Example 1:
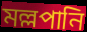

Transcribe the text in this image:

মল্লপানি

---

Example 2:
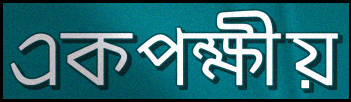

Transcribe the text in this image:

একপক্ষীয়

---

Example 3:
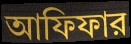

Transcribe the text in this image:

আফিফার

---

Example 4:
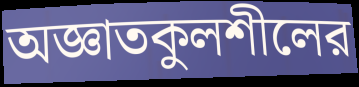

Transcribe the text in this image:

অজ্ঞাতকুলশীলের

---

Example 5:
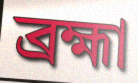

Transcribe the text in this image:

ব্রহ্মা